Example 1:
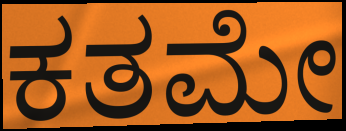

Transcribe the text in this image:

ಕತಮೇ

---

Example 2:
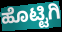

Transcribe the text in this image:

ಹೊಟ್ಟಿಗಿ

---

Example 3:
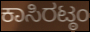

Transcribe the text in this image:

ಕಾಸಿರಟ್ಠಂ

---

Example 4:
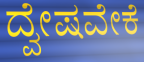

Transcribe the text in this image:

ದ್ವೇಷವೇಕೆ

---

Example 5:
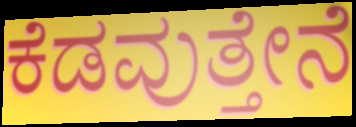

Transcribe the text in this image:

ಕೆಡವುತ್ತೇನೆ